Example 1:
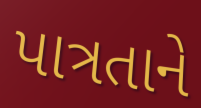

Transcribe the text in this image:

પાત્રતાને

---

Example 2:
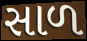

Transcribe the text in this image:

સાળ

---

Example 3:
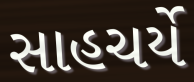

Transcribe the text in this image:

સાહચર્યે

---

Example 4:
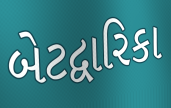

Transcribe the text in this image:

બેટદ્વારિકા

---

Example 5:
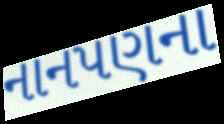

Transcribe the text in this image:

નાનપણના